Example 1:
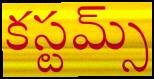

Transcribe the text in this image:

కస్టమ్స్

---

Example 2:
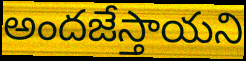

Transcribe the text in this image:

అందజేస్తాయని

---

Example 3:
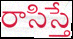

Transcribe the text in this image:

రాసిస్తే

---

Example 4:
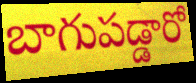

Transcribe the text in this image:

బాగుపడ్డారో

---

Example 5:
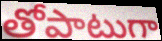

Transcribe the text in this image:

తోపాటుగా